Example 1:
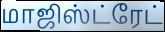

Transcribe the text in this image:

மாஜிஸ்ட்ரேட்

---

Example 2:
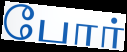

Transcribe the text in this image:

போர்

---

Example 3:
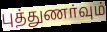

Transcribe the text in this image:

புத்துணர்வும்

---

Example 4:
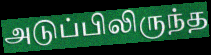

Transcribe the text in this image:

அடுப்பிலிருந்த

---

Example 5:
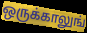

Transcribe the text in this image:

ஒருக்காலுங்